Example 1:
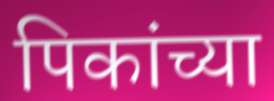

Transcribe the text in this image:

पिकांच्या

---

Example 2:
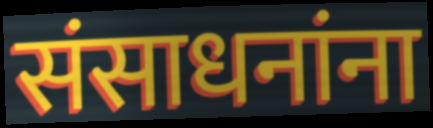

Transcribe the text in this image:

संसाधनांना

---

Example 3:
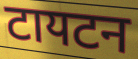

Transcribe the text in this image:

टायटन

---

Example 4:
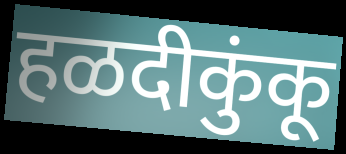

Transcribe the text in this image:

हळदीकुंकू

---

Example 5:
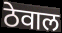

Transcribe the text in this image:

ठेवाल